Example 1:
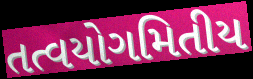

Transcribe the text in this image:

તત્વયોગમિતીય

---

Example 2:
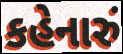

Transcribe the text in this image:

કહેનારું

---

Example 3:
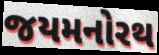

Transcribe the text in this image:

જયમનોરથ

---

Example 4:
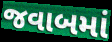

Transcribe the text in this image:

જવાબમાં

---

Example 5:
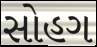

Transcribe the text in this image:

સોહગ